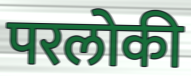
परलोकी